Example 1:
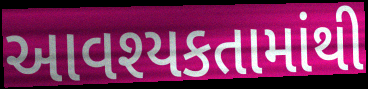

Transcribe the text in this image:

આવશ્યકતામાંથી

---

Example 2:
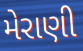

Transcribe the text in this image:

મેરાણી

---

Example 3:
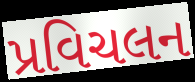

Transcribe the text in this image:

પ્રવિચલન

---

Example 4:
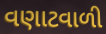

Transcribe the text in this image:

વણાટવાળી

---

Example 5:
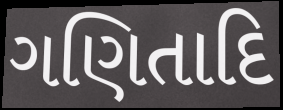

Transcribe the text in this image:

ગણિતાદિ